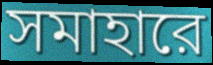
সমাহারে